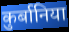
कुर्बानिया